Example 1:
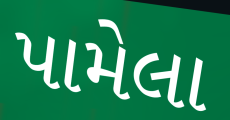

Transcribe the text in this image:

પામેલા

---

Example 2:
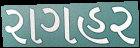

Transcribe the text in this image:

રાગહર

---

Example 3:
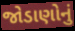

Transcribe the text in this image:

જોડાણોનું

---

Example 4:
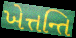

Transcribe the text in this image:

ખેત્તન્તિ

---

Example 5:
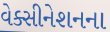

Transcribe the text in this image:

વેક્સીનેશનના